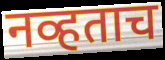
नव्हताच